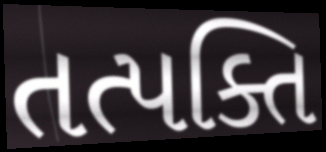
તત્પક્તિ